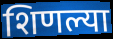
शिणल्या